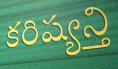
కరిష్యన్తి